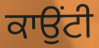
ਕਾਉਂਟੀ